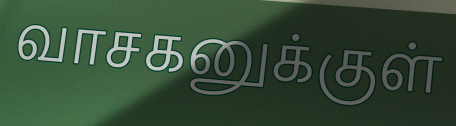
வாசகனுக்குள்